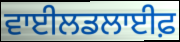
ਵਾਈਲਡਲਾਈਫ਼